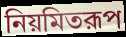
নিয়মিতরূপ